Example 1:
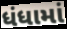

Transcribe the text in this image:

ધંધામાં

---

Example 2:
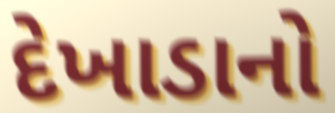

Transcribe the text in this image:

દેખાડાનો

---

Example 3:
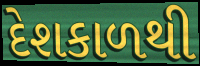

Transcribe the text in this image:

દેશકાળથી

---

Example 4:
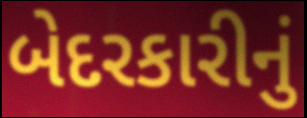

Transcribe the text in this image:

બેદરકારીનું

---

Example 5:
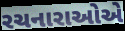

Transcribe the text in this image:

રચનારાઓએ